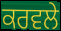
ਕਰਵਲੇ